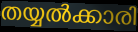
തയ്യൽക്കാരി